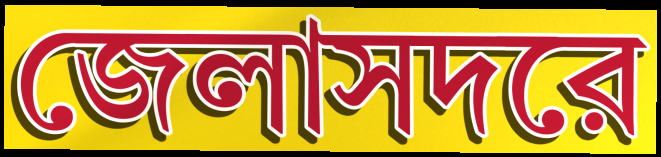
জেলাসদরে